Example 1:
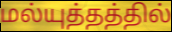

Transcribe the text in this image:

மல்யுத்தத்தில்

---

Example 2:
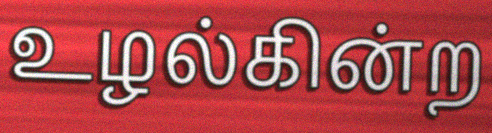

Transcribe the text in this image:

உழல்கின்ற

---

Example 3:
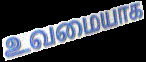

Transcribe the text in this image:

உவமையாக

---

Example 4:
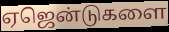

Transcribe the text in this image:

ஏஜென்டுகளை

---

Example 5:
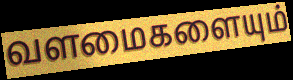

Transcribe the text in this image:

வளமைகளையும்